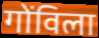
गोंविला